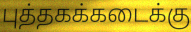
புத்தகக்கடைக்கு